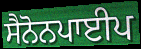
ਸੈਨੋਨਪਾਈਪ